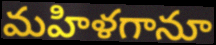
మహిళగానూ